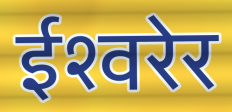
ईश्वरेर